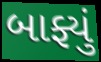
બાફ્યું